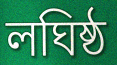
লঘিষ্ঠ